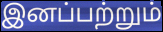
இனப்பற்றும்